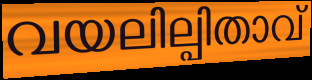
വയലില്പിതാവ്